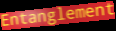
Entanglement